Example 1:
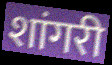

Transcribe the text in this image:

शांगरी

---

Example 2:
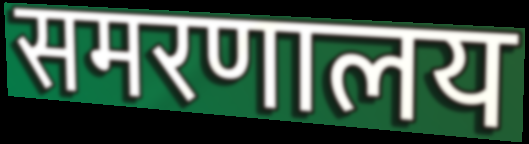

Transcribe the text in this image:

समरणालय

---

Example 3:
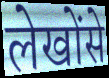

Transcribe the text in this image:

लेखोंसे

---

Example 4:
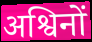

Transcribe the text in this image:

अश्विनों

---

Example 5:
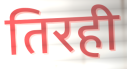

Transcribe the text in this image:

तिरही